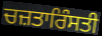
ਚਜ਼ਤਾਰਿੰਸਤੀ